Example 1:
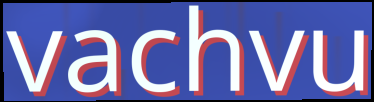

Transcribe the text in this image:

vachvu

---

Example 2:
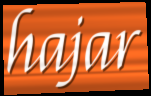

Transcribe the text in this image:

hajar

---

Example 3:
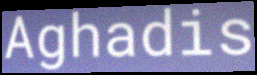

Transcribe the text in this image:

Aghadis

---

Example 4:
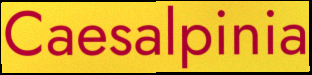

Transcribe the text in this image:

Caesalpinia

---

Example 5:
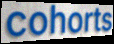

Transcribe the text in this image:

cohorts